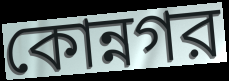
কোন্নগর